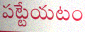
పట్టేయటం